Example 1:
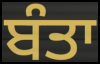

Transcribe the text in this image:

ਬੰਤਾ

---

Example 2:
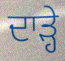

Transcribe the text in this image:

ਦਾੜ੍ਹੇ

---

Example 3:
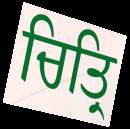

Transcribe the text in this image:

ਚਿਤ੍ਰਿ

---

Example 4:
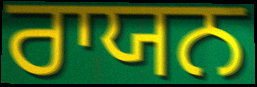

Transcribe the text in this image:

ਰਾਯਨ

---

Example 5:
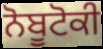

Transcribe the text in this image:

ਨੋਬੂਟੋਕੀ